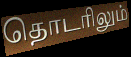
தொடரிலும்